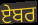
ਏਬਰ